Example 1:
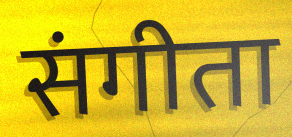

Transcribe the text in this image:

संगीता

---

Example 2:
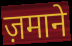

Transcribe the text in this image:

ज़माने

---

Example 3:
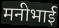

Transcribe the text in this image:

मनीभाई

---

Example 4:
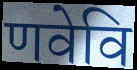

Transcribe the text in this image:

णवेवि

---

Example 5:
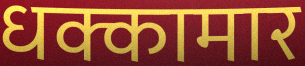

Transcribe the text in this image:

धक्कामार